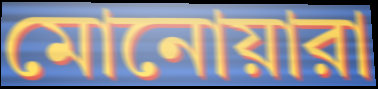
মোনোয়ারা